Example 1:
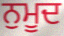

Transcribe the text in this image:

ਨੁਮੂਦ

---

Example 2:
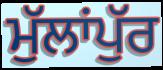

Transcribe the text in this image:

ਮੁੱਲਾਂਪੁੱਰ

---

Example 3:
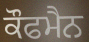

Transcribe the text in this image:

ਕੌਫਮੈਨ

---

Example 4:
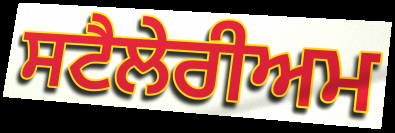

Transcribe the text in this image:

ਸਟੈਲੇਰੀਅਮ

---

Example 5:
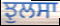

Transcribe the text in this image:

ਝੁਲਸਾ